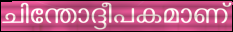
ചിന്തോദ്ദീപകമാണ്